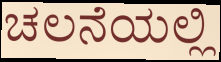
ಚಲನೆಯಲ್ಲಿ